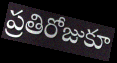
ప్రతిరోజుకూ